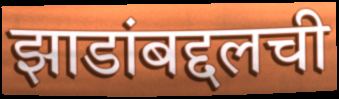
झाडांबद्दलची